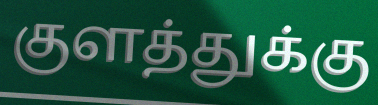
குளத்துக்கு